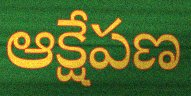
ఆక్షేపణ